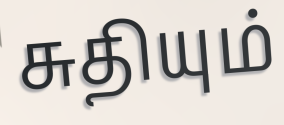
சுதியும்